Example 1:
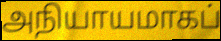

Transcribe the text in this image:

அநியாயமாகப்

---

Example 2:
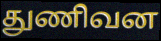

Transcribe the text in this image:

துணிவன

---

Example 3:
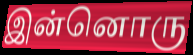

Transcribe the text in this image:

இன்னொரு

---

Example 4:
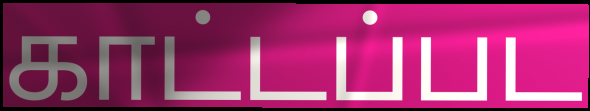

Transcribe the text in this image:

காட்டப்பட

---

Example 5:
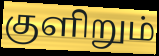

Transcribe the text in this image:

குளிறும்